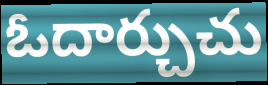
ఓదార్చుచు